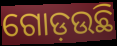
ଗୋଡ଼ଉଛି